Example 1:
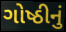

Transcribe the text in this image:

ગોષ્ઠીનું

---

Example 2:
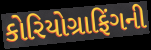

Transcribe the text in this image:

કોરિયોગ્રાફિંગની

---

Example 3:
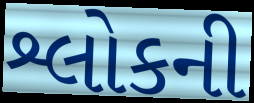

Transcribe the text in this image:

શ્લોકની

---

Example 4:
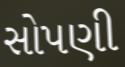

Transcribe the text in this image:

સોપણી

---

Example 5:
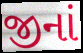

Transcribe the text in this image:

જીનાં